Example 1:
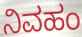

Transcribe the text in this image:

ನಿವಹಂ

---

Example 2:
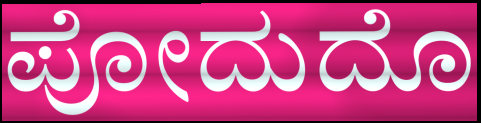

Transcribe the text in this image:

ಪೋದುದೊ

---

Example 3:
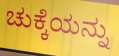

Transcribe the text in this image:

ಚುಕ್ಕೆಯನ್ನು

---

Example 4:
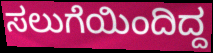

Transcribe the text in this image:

ಸಲುಗೆಯಿಂದಿದ್ದ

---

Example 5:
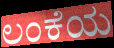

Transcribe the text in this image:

ಲಂಕೆಯ